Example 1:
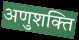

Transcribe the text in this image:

अणुशक्ति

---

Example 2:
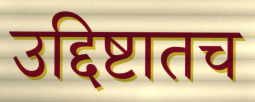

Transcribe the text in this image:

उद्दिष्टातच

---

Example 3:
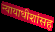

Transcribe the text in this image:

न्यायाधीशांसह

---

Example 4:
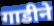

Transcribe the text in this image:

गाडीने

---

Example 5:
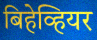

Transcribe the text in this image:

बिहेव्हियर